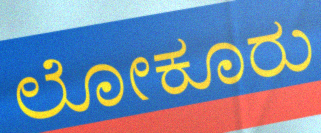
ಲೋಕೂರು